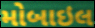
મોબાઇલ